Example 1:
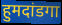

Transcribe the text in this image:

हुमदांडगा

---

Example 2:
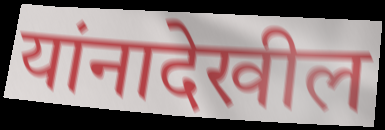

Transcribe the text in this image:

यांनादेखील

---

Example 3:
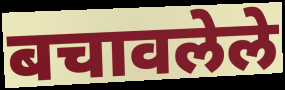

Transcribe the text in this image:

बचावलेले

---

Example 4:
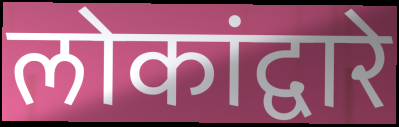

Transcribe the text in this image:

लोकांद्वारे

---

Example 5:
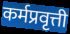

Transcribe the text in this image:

कर्मप्रवृत्ती